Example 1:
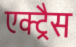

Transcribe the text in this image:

एक्ट्रैस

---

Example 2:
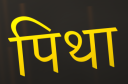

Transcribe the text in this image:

पिथा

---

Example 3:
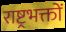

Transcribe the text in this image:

राष्ट्रभक्तों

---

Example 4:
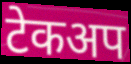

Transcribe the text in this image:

टेकअप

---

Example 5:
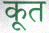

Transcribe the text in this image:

कूत